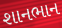
શાનભાન